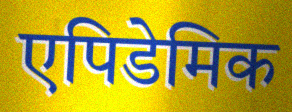
एपिडेमिक